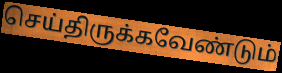
செய்திருக்கவேண்டும்